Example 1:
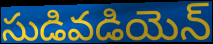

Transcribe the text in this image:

సుడివడియెన్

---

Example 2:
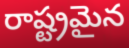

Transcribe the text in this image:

రాష్ట్రమైన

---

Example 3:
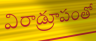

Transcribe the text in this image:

విరాడ్రూపంతో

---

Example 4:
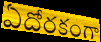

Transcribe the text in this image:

ఏదోరకంగా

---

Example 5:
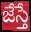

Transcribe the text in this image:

జేస్తే